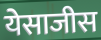
येसाजीस